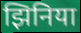
झिनिया